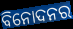
ବିନୋଦନର